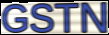
GSTN